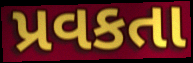
પ્રવકતા